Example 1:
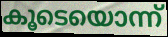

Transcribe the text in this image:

കൂടെയൊന്ന്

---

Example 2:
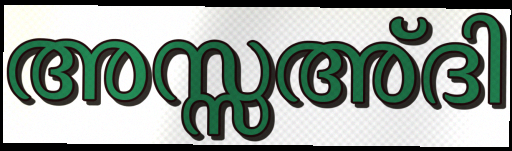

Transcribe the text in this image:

അസ്സഅ്ദി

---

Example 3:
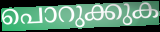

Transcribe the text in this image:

പൊറുക്കുക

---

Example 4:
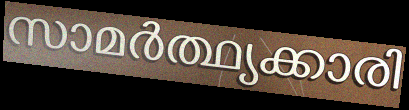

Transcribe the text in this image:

സാമർത്ഥ്യക്കാരി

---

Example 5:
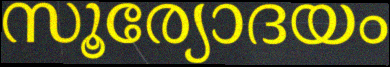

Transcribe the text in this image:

സൂര്യോദയം